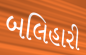
બલિહારી